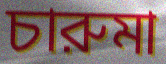
চারুমা